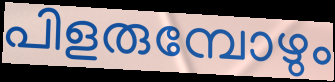
പിളരുമ്പോഴും